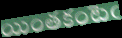
యింతకంటెఁ